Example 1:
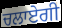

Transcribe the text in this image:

ਚਲਾਏਗੀ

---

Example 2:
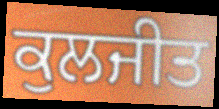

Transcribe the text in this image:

ਕੁਲਜੀਤ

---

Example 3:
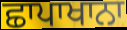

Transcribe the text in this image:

ਛਾਪਾਖਾਨਾ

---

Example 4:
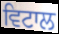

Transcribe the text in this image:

ਵਿਟਾਲ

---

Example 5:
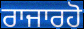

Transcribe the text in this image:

ਰਾਜਾਰਹੋ